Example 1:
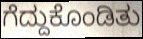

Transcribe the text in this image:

ಗೆದ್ದುಕೊಂಡಿತು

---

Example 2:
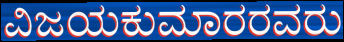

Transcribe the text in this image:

ವಿಜಯಕುಮಾರರವರು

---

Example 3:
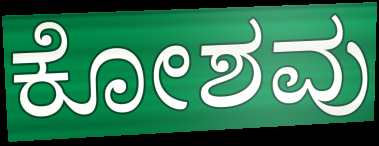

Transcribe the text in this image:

ಕೋಶವು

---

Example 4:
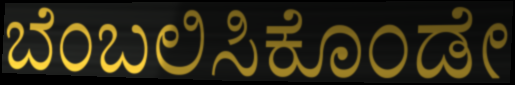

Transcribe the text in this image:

ಬೆಂಬಲಿಸಿಕೊಂಡೇ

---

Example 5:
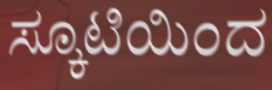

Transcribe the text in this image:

ಸ್ಕೂಟಿಯಿಂದ